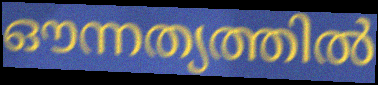
ഔന്നത്യത്തിൽ